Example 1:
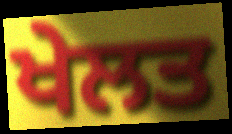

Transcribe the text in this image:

ਖੇਲਤ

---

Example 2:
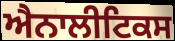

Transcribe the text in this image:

ਐਨਾਲੀਟਿਕਸ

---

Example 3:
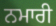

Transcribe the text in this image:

ਨਮਾਰੀ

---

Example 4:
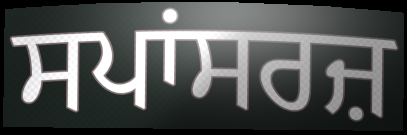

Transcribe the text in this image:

ਸਪਾਂਸਰਜ਼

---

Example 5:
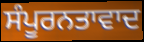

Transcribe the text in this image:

ਸੰਪੂਰਨਤਾਵਾਦ